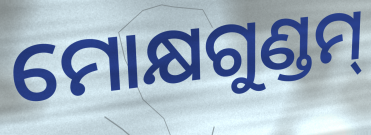
ମୋକ୍ଷଗୁଣ୍ଡମ୍